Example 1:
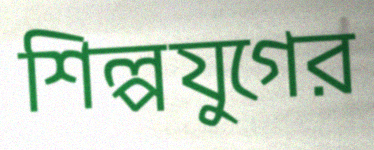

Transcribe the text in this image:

শিল্পযুগের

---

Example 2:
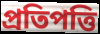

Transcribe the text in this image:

প্রতিপত্তি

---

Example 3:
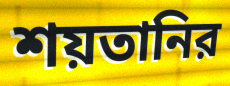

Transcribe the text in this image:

শয়তানির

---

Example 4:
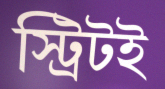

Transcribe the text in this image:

স্ট্রিটই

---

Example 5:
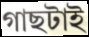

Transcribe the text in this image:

গাছটাই